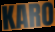
KARO